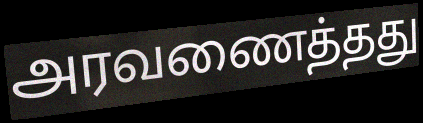
அரவணைத்தது